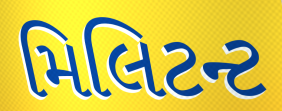
મિલિટન્ટ